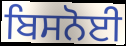
ਬਿਸਨੋਈ